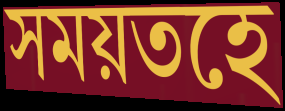
সময়তহে